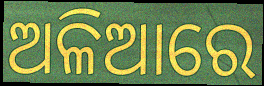
ଅଳିଆରେ